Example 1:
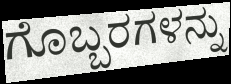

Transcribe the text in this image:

ಗೊಬ್ಬರಗಳನ್ನು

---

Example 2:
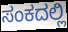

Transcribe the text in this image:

ಸಂಕದಲ್ಲಿ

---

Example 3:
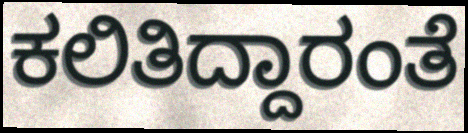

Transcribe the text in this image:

ಕಲಿತಿದ್ದಾರಂತೆ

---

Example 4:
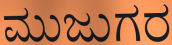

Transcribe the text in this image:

ಮುಜುಗರ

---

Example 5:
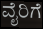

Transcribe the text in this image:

ವೈರಿಗೆ